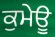
ਕੁਮੇਊ